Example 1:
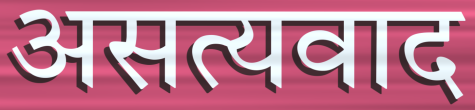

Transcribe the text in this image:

असत्यवाद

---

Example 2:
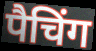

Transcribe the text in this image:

पैचिंग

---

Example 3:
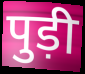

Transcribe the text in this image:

पुड़ी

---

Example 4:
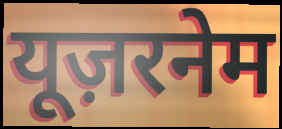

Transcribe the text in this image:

यूज़रनेम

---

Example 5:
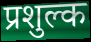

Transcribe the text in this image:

प्रशुल्क